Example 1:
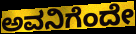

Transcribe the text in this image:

ಅವನಿಗೆಂದೇ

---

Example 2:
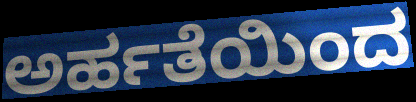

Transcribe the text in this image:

ಅರ್ಹತೆಯಿಂದ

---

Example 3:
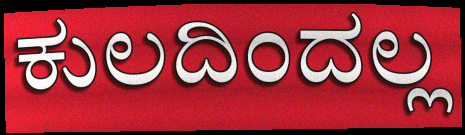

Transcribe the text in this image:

ಕುಲದಿಂದಲ್ಲ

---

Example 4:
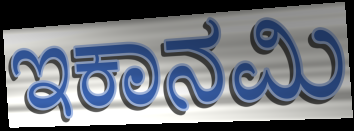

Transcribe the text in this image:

ಇಕಾನಮಿ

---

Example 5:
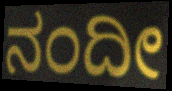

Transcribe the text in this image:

ನಂದೀ